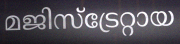
മജിസ്ട്രേറ്റായ